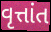
વૃત્તાંત